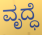
ವೃದ್ಧೆ